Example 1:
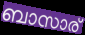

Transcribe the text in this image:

ബാസാര്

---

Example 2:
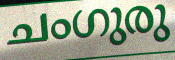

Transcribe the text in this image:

ചംഗുരു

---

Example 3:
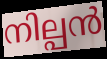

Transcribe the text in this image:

നില്പൻ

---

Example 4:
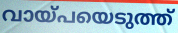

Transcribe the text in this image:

വായ്പയെടുത്ത്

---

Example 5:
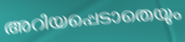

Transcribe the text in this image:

അറിയപ്പെടാതെയും